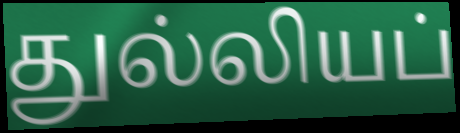
துல்லியப்